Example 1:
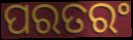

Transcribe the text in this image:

ପରତରଂ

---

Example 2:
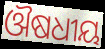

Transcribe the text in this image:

ଔଷଧୀୟ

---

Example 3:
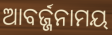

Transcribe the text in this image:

ଆବର୍ଜ୍ଜନାମୟ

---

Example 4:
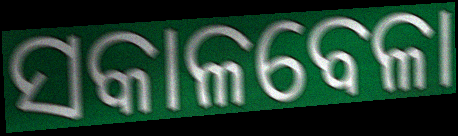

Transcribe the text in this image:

ସକାଳବେଳା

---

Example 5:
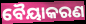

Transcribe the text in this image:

ବୈୟାକରଣ